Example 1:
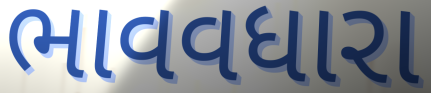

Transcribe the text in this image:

ભાવવધારા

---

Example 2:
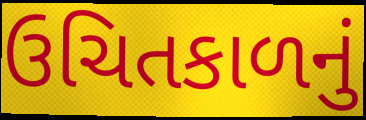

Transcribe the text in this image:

ઉચિતકાળનું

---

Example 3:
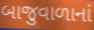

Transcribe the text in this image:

બાજુવાળાનાં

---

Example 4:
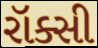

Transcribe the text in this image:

રૉક્સી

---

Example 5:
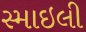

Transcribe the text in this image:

સ્માઇલી